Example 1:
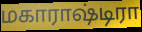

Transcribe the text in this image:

மகாராஷ்டிரா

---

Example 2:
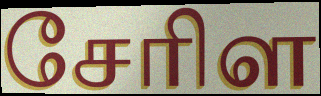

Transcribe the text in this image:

சேரிள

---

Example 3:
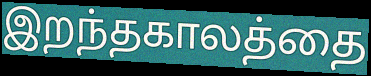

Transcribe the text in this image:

இறந்தகாலத்தை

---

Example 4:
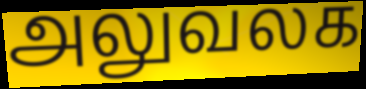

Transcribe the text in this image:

அலுவலக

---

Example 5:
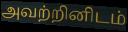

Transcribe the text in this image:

அவற்றினிடம்